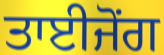
ਤਾਈਜੋਂਗ